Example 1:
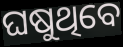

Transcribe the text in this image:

ଘଷୁଥିବେ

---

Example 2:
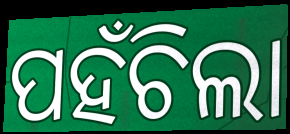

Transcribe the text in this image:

ପହଁଚିଲା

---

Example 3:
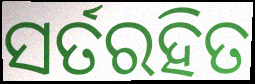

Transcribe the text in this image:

ସର୍ତରହିତ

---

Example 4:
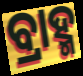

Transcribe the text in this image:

ବ୍ରାହ୍ମ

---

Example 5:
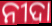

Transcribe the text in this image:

ନୀଦା